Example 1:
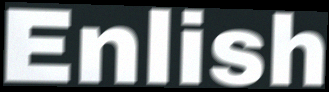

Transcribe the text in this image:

Enlish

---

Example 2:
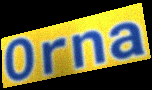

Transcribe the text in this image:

Orna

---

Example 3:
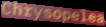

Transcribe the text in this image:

Chrysopelea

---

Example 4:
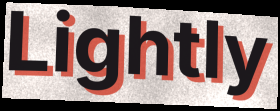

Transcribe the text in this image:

Lightly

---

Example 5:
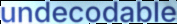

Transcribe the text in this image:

undecodable